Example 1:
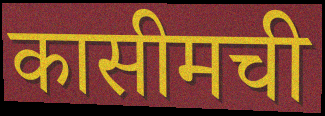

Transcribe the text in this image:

कासीमची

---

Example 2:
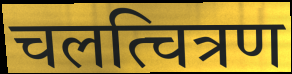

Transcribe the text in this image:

चलत्चित्रण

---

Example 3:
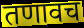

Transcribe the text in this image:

तणावच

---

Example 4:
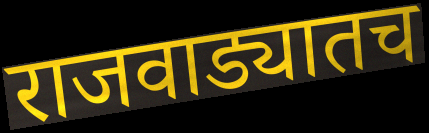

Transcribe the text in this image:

राजवाड्यातच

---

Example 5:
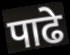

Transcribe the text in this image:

पाढे